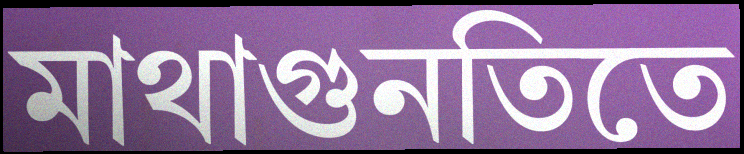
মাথাগুনতিতে